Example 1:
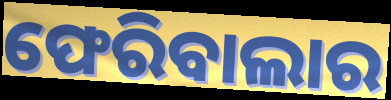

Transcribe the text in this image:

ଫେରିବାଲାର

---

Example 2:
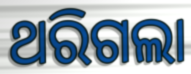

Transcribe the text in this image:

ଥରିଗଲା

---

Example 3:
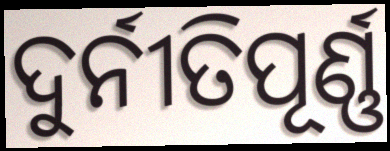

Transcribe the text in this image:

ଦୁର୍ନୀତିପୂର୍ଣ୍ଣ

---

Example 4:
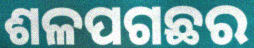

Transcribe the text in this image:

ଶଳପଗଛର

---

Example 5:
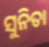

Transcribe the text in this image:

ସୁନିତା